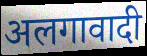
अलगावादी